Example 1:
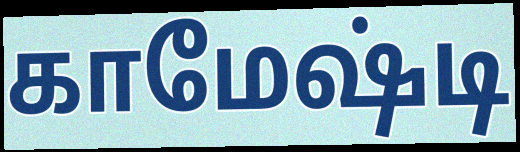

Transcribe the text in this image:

காமேஷ்டி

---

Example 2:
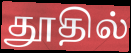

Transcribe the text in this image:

தூதில்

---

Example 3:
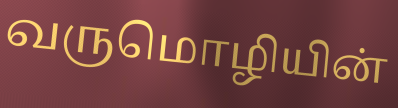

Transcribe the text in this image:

வருமொழியின்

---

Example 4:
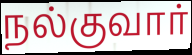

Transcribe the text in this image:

நல்குவார்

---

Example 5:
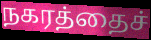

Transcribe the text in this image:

நகரத்தைச்